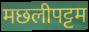
मछलीपट्टम